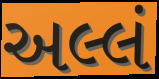
અલ્લં